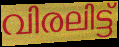
വിരലിട്ട്